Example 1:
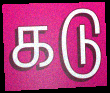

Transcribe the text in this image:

கடு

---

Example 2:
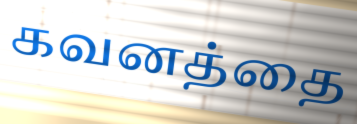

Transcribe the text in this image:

கவனத்தை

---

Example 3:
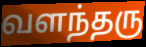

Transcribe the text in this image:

வளந்தரு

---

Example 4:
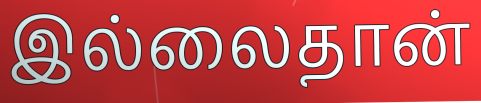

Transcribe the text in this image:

இல்லைதான்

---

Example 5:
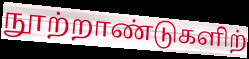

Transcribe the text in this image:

நூற்றாண்டுகளிற்